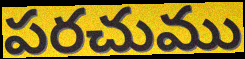
పరచుము